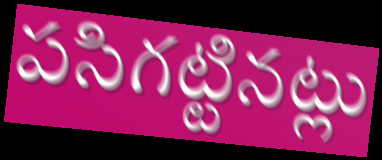
పసిగట్టినట్లు